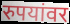
रुपयांवर